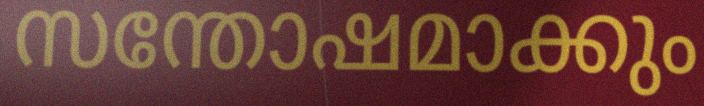
സന്തോഷമാക്കും